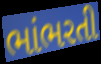
ભાંભરતી